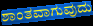
ಶಾಂತವಾಗುವುದು